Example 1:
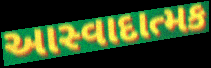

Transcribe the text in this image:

આસ્વાદાત્મક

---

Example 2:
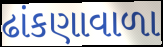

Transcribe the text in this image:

ઢાંકણાવાળા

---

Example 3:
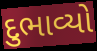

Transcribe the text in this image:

દુભાવ્યો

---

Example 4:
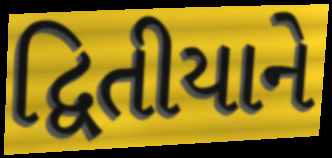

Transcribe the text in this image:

દ્વિતીયાને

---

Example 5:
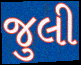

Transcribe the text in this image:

જુલી